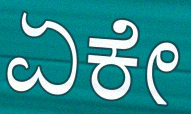
ಏಕೇ